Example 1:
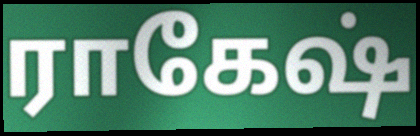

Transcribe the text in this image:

ராகேஷ்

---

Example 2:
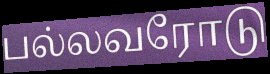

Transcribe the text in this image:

பல்லவரோடு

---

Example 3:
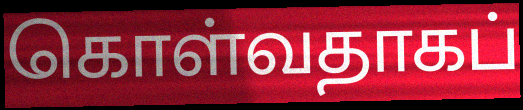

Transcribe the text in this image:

கொள்வதாகப்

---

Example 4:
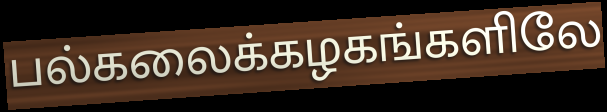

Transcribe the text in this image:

பல்கலைக்கழகங்களிலே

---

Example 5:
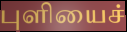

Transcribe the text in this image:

புளியைச்